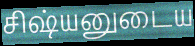
சிஷ்யனுடைய